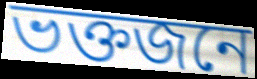
ভক্তজনে